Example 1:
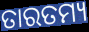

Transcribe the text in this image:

ତାରତମ୍ୟ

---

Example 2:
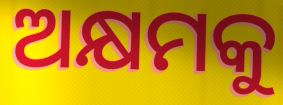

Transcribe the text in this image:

ଅକ୍ଷମକୁ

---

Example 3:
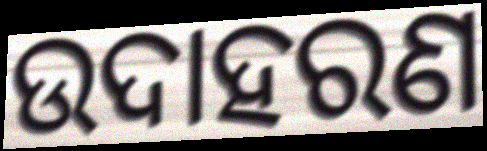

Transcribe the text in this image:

ଉଦାହରଣ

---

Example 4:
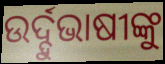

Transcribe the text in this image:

ଉର୍ଦ୍ଦୁଭାଷୀଙ୍କୁ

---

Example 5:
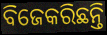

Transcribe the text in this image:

ବିଜେକରିଛନ୍ତି